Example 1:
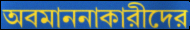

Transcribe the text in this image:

অবমাননাকারীদের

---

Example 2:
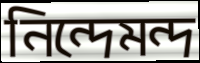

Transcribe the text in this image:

নিন্দেমন্দ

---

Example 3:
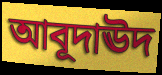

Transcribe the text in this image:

আবূদাঊদ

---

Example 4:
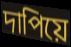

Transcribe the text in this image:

দাপিয়ে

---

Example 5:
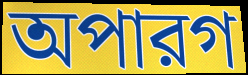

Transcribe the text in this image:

অপারগ